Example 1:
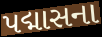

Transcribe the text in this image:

પદ્માસના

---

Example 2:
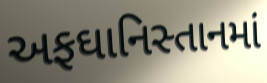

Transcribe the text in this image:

અફઘાનિસ્તાનમાં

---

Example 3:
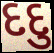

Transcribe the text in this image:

દદુ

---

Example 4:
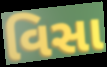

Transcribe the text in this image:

વિસા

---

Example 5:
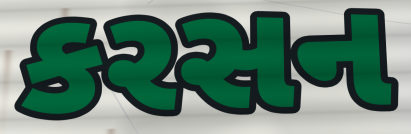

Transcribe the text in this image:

કરસન